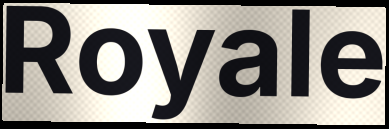
Royale